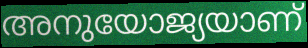
അനുയോജ്യയാണ്